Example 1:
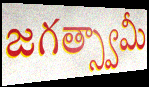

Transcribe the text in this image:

జగత్స్వామీ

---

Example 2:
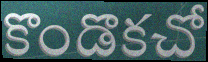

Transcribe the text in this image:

కొండొకచో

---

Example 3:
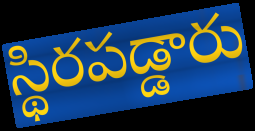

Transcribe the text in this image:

స్థిరపడ్డారు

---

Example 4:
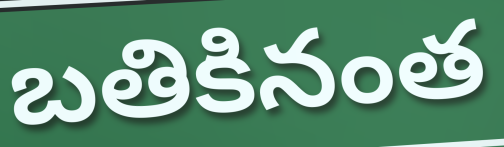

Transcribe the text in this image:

బతికినంత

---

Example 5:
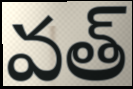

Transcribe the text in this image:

వత్